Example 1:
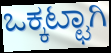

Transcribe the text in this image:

ಒಕ್ಕಟ್ಟಾಗಿ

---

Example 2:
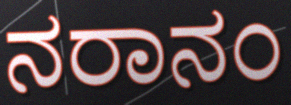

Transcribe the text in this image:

ನರಾನಂ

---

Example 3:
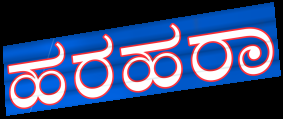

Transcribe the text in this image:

ಹರಹರಾ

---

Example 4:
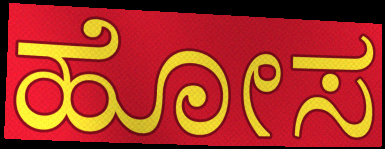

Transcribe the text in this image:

ಹೋಸ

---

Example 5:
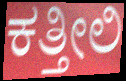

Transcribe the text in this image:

ಕತ್ತೀಲಿ